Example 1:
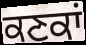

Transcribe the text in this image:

ਕਣਕਾਂ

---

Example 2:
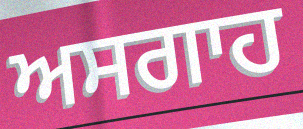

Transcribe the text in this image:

ਅਸਗਾਹ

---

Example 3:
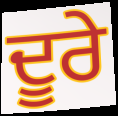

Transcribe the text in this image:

ਦੂਰੇ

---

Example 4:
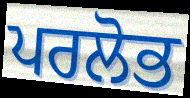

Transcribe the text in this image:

ਪਰਲੋਭ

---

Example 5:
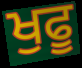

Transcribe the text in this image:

ਖੁਫੂ